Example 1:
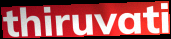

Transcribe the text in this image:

thiruvati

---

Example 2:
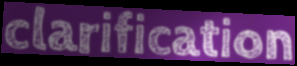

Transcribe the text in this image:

clarification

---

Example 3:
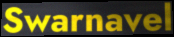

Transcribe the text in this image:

Swarnavel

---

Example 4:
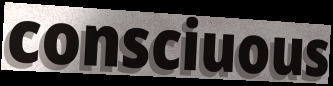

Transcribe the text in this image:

consciuous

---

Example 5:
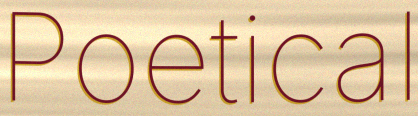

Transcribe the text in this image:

Poetical